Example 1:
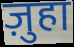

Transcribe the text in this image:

ज़ुहा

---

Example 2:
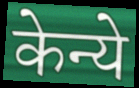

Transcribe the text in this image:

केन्ये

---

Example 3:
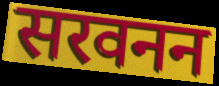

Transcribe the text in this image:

सरवनन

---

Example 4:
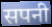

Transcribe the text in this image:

सपनी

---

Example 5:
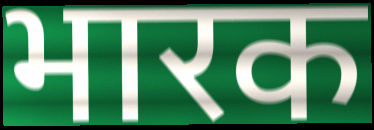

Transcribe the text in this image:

भारक